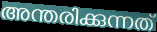
അന്തരിക്കുന്നത്